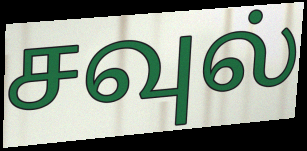
சவுல்